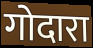
गोदारा